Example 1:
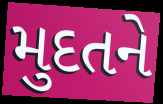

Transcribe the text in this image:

મુદતને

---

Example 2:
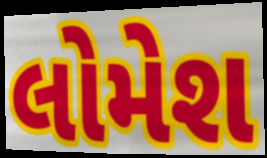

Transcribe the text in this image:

લોમેશ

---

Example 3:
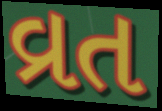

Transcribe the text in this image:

વ્રત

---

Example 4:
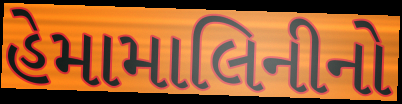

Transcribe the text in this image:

હેમામાલિનીનો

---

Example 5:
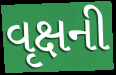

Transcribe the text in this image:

વૃક્ષની